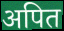
अपित